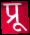
प्रू